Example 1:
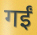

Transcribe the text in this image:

गईं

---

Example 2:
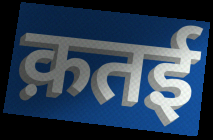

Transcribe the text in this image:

क़तई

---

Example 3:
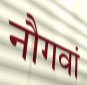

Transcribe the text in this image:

नौगवां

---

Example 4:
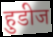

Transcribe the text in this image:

हुडीज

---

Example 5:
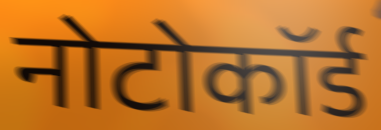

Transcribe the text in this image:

नोटोकॉर्ड